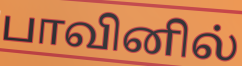
பாவினில்